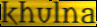
khulna